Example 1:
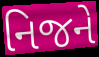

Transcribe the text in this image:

નિજને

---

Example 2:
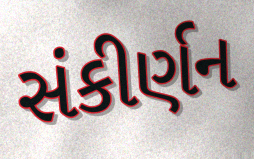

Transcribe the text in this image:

સંકીર્ણન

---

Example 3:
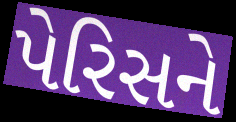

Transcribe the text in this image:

પેરિસને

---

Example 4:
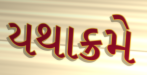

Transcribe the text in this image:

યથાક્રમે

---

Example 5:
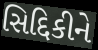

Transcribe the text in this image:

સિદ્દિકીને